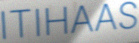
ITIHAAS